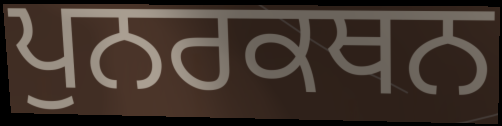
ਪੁਨਰਕਥਨ